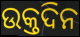
ଉକ୍ତଦିନ